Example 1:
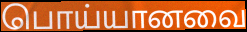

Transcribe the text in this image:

பொய்யானவை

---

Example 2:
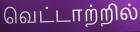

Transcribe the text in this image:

வெட்டாற்றில்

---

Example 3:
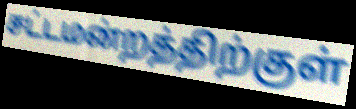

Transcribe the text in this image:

சட்டமன்றத்திற்குள்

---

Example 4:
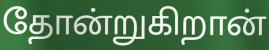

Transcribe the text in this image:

தோன்றுகிறான்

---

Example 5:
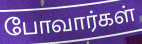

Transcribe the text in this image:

போவார்கள்